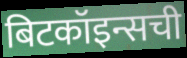
बिटकॉइन्सची